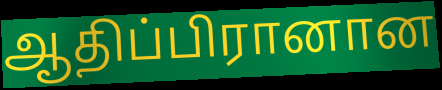
ஆதிப்பிரானான